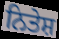
ਨਿਤੇਸ਼